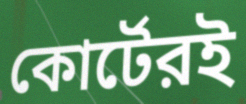
কোর্টেরই